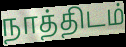
நாத்திடம்